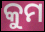
କୁମ